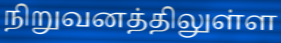
நிறுவனத்திலுள்ள